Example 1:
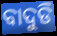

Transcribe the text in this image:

ବାଦୁଡି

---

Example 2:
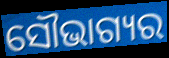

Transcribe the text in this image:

ସୌଭାଗ୍ୟର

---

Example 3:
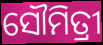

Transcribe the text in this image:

ସୌମିତ୍ରୀ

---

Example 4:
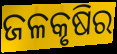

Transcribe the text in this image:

ଜଳକୃଷିର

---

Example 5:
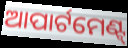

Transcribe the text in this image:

ଆପାର୍ଟମେଣ୍ଟ୍